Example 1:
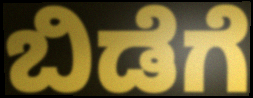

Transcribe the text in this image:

ಬಿಡೆಗೆ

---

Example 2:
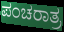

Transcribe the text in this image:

ಪಂಚರಾತ್ರ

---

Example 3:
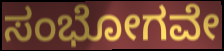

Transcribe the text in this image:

ಸಂಭೋಗವೇ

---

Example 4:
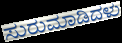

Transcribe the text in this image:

ಸುರುಮಾಡಿದಳು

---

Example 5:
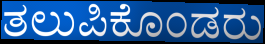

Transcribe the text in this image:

ತಲುಪಿಕೊಂಡರು